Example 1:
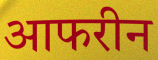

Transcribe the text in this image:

आफरीन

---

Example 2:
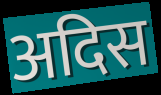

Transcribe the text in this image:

अदिस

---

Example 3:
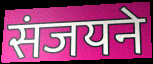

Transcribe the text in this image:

संजयने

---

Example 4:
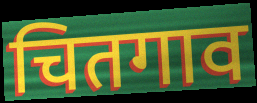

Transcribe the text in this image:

चितगाव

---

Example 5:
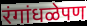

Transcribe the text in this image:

रंगांधळेपण